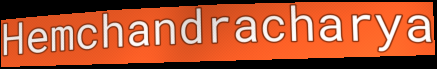
Hemchandracharya